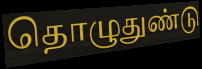
தொழுதுண்டு